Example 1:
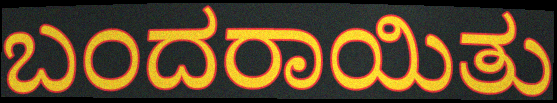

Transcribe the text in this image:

ಬಂದರಾಯಿತು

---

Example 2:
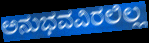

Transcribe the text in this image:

ಅನುಭವವಿರಲಿಲ್ಲ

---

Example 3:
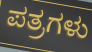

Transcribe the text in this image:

ಪತ್ರಗಳು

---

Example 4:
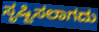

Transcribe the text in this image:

ಸೃಷ್ಟಿಸಲಾಗದು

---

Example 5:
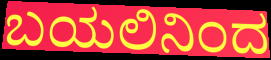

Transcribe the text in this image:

ಬಯಲಿನಿಂದ